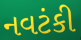
નવટંકી